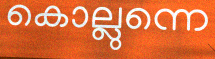
കൊല്ലുന്നെ